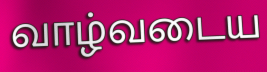
வாழ்வடைய